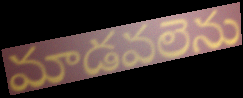
మాడవలెను